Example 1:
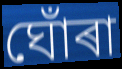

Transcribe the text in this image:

ঘোঁৰা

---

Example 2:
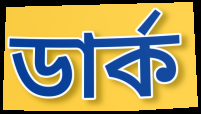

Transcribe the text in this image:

ডাৰ্ক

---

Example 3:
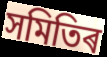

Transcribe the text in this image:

সমিতিৰ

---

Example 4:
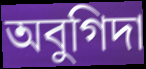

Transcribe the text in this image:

অবুগিদা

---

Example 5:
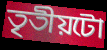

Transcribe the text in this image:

তৃতীয়টো